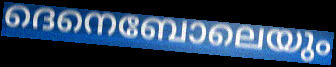
ദെനെബോലെയും